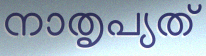
നാതൃപ്യത്